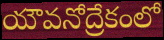
యౌవనోద్రేకంలో